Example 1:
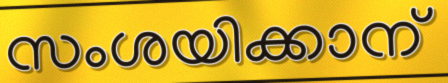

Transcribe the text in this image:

സംശയിക്കാന്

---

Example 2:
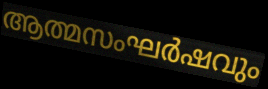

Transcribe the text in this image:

ആത്മസംഘർഷവും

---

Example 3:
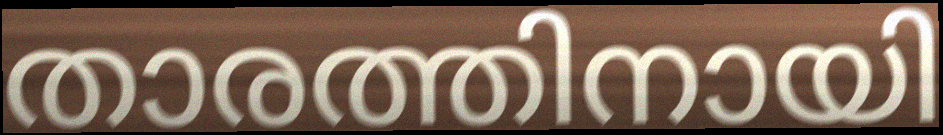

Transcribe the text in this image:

താരത്തിനായി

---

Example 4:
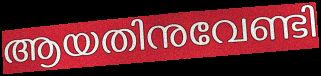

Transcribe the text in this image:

ആയതിനുവേണ്ടി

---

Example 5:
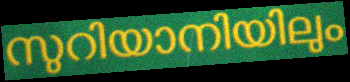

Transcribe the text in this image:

സുറിയാനിയിലും